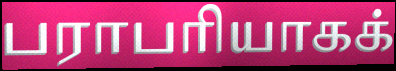
பராபரியாகக்